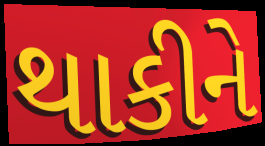
થાકીને